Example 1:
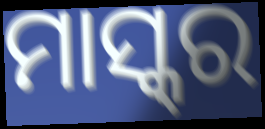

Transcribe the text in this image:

ମାସ୍କ୍‌ର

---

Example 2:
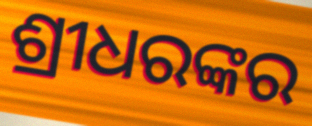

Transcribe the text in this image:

ଶ୍ରୀଧରଙ୍କର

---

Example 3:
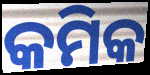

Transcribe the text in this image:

କମିକ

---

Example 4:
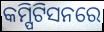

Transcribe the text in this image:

କମ୍ପିଟିସନରେ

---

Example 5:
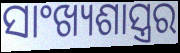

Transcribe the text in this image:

ସାଂଖ୍ୟଶାସ୍ତ୍ରର